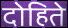
दोहिते